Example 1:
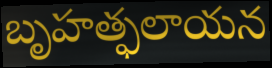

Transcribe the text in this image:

బృహత్ఫలాయన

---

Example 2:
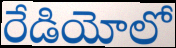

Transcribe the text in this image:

రేడియోలో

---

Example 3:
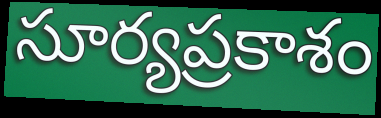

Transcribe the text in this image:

సూర్యప్రకాశం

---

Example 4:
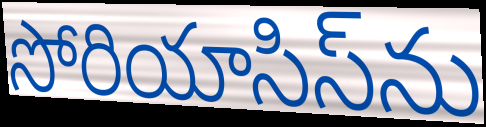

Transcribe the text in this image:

సోరియాసిస్‌ను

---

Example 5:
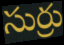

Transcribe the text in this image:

సుర్రు